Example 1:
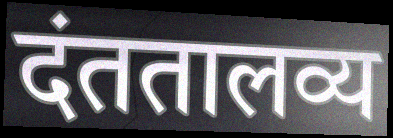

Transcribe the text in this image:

दंततालव्य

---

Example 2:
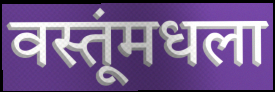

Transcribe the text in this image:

वस्तूंमधला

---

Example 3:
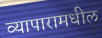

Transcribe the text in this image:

व्यापारामधील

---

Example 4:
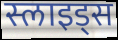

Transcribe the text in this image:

स्लाइड्स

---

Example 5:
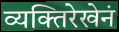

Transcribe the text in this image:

व्यक्तिरेखेनं